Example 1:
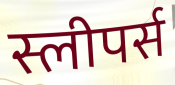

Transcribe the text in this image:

स्लीपर्स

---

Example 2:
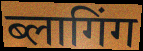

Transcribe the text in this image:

ब्लागिंग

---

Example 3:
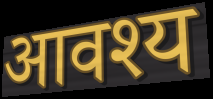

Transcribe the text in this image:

आवश्य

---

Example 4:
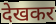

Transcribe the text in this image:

देखकर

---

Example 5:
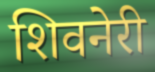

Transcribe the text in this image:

शिवनेरी